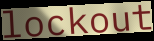
lockout